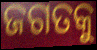
ଜଗତକୁ